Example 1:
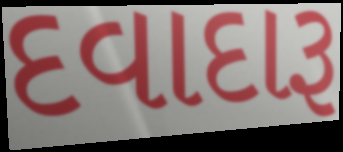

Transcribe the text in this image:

દવાદારૂ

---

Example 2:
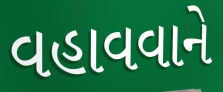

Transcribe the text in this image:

વહાવવાને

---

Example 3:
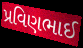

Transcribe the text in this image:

પ્રવિણભાઈ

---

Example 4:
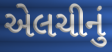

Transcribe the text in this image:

એલચીનું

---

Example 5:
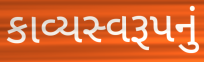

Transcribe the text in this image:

કાવ્યસ્વરૂપનું